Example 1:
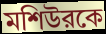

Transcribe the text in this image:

মশিউরকে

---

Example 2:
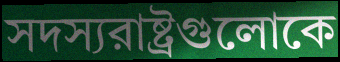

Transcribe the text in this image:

সদস্যরাষ্ট্রগুলোকে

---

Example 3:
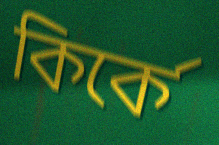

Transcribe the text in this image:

কির্কে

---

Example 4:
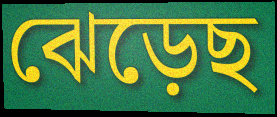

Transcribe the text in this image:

ঝেড়েছ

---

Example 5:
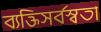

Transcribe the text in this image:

ব্যক্তিসর্বস্বতা